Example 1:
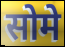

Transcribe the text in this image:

सोमे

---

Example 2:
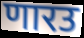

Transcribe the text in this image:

णारउ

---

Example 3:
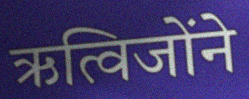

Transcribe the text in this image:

ऋत्विजोंने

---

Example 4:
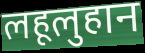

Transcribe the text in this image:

लहूलुहान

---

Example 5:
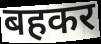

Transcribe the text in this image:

बहकर